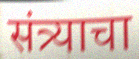
संत्र्याचा